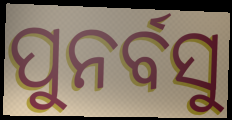
ପୁନର୍ବସୁ